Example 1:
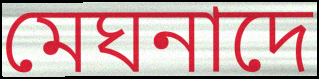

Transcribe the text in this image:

মেঘনাদে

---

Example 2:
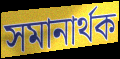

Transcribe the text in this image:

সমানার্থক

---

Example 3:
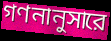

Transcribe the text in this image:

গণনানুসারে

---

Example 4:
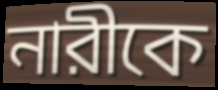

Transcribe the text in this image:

নারীকে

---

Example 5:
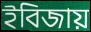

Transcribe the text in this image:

ইবিজায়